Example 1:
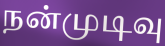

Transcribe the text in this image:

நன்முடிவு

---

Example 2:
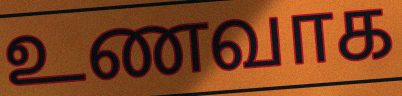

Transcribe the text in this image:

உணவாக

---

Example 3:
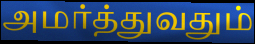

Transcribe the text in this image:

அமர்த்துவதும்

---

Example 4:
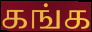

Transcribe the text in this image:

கங்க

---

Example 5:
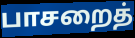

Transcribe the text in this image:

பாசறைத்